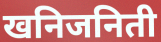
खनिजनिती